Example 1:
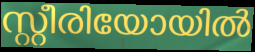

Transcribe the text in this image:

സ്റ്റീരിയോയിൽ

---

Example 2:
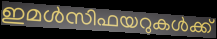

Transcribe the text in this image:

ഇമൾസിഫയറുകൾക്ക്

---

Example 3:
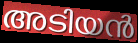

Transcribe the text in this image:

അടിയൻ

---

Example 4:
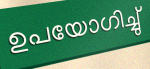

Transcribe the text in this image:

ഉപയോഗിച്ചു്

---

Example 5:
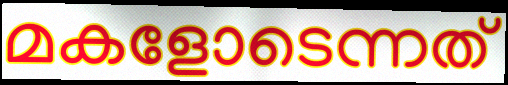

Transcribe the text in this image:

മകളോടെന്നത്